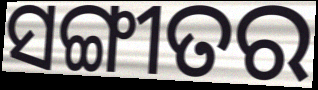
ସଙ୍ଗୀତର